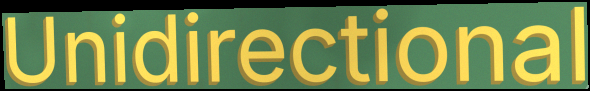
Unidirectional